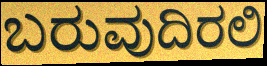
ಬರುವುದಿರಲಿ